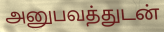
அனுபவத்துடன்